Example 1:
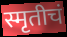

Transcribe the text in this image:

स्मृतीचं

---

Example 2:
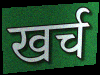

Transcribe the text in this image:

खर्च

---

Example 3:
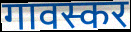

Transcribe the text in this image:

गावस्कर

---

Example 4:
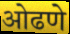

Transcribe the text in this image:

ओढणे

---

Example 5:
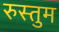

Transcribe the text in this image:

रुस्तुम